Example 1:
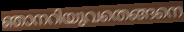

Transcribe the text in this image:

ഞാനറിയുവതെങ്ങനെ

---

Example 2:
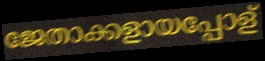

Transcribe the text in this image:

ജേതാക്കളായപ്പോള്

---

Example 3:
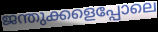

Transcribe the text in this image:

ജന്തുക്കളെപ്പോലെ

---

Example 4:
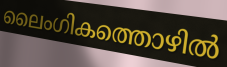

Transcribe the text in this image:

ലൈംഗികത്തൊഴിൽ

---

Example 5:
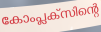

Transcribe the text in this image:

കോംപ്ലക്‌സിന്റെ